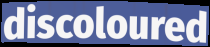
discoloured